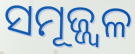
ସମୂଜ୍ଜ୍ୱଳ